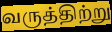
வருத்திற்று